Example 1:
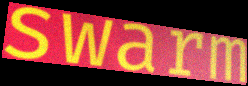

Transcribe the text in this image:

swarm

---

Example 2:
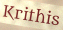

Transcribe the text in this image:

Krithis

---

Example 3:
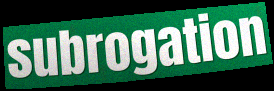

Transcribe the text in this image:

subrogation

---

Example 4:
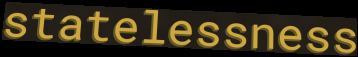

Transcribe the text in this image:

statelessness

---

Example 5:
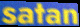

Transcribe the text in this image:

satan